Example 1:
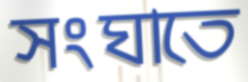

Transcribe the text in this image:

সংঘাতে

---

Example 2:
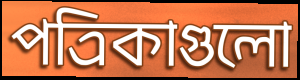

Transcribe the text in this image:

পত্রিকাগুলো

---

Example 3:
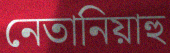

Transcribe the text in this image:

নেতানিয়াহু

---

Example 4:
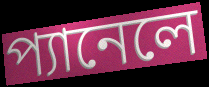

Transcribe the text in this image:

প্যানেলে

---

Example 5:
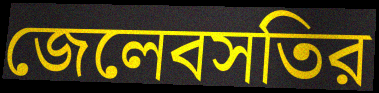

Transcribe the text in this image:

জেলেবসতির